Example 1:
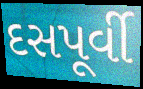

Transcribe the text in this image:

દસપૂર્વી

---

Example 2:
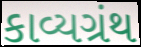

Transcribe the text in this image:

કાવ્યગ્રંથ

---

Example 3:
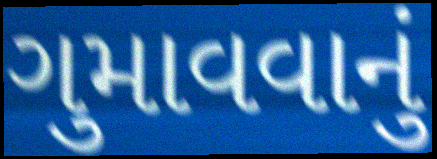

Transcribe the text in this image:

ગુમાવવાનું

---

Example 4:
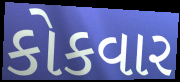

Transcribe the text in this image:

કોકવાર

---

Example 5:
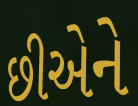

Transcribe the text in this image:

છીએને